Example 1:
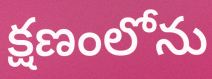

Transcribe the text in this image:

క్షణంలోను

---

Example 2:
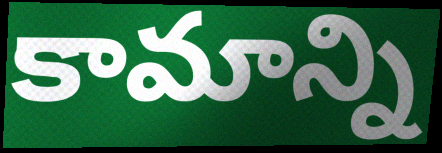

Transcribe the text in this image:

కామాన్ని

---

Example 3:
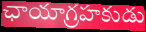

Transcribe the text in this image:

ఛాయాగ్రహకుడు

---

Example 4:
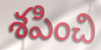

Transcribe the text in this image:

శపించి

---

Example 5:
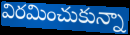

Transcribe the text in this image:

విరమించుకున్నా